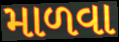
માળવા